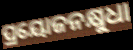
ପ୍ରୟୋଜନକ୍ଷୁଧା